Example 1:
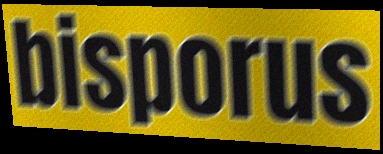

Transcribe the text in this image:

bisporus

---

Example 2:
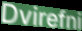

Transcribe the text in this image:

Dvirefni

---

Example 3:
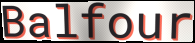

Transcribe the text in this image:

Balfour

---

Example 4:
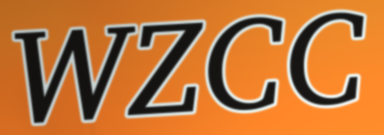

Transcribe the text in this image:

WZCC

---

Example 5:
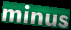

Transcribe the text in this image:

minus